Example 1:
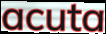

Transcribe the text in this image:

acuta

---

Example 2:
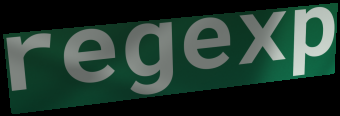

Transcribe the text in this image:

regexp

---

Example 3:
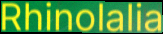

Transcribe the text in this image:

Rhinolalia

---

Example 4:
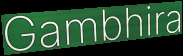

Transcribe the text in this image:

Gambhira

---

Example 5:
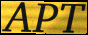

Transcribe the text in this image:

APT